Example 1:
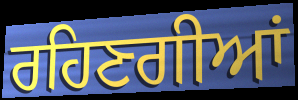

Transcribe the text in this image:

ਰਹਿਣਗੀਆਂ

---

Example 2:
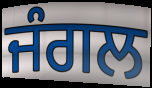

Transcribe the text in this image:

ਜੰਗਲ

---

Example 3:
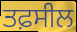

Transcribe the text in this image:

ਤਫ਼ਸੀਲ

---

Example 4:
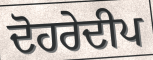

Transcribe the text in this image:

ਦੋਹਰੇਦੀਪ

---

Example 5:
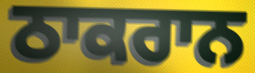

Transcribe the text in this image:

ਠਾਕਰਾਨ